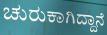
ಚುರುಕಾಗಿದ್ದಾನೆ